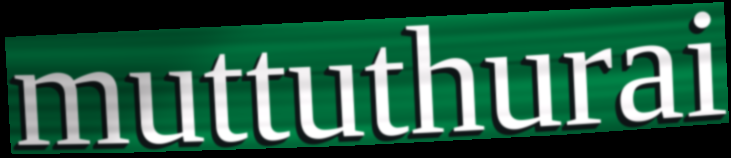
muttuthurai